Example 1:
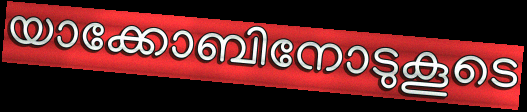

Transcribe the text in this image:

യാക്കോബിനോടുകൂടെ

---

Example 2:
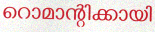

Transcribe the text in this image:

റൊമാന്റിക്കായി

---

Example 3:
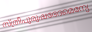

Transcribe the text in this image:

സ്ത്രീപുരുഷഭേദമെന്യേ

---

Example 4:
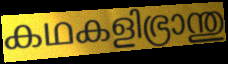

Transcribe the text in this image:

കഥകളിഭ്രാന്തു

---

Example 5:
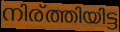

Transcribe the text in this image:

നിര്ത്തിയിട്ട